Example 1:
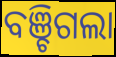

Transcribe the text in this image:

ବଞ୍ଚିଗଲା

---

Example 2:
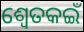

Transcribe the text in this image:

ଶ୍ୱେତକଇଁ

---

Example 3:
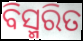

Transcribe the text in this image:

ବିସ୍ମରିତ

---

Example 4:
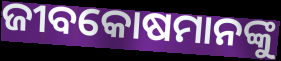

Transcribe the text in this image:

ଜୀବକୋଷମାନଙ୍କୁ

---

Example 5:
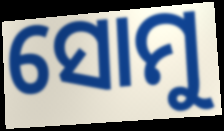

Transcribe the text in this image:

ସୋମୁ